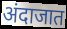
अंदाजात